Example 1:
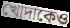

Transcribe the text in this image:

খোদাকেও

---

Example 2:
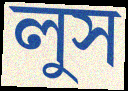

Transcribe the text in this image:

লুস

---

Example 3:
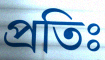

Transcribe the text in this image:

প্রতিঃ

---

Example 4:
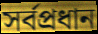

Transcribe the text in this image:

সর্বপ্রধান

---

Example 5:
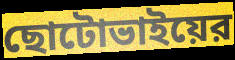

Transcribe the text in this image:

ছোটোভাইয়ের